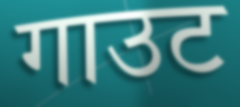
गाउट